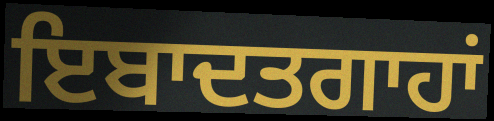
ਇਬਾਦਤਗਾਹਾਂ